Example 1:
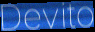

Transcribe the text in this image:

Devito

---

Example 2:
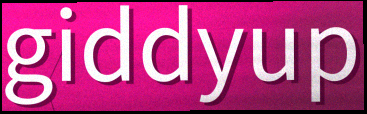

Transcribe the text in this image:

giddyup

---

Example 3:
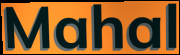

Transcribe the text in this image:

Mahal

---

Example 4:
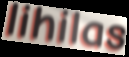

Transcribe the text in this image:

lihilas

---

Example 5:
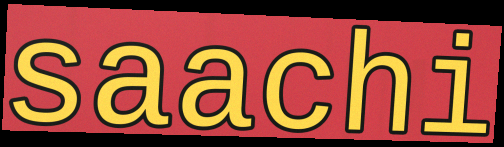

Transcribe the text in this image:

saachi